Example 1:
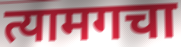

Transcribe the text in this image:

त्यामगचा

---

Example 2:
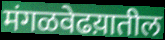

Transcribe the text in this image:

मंगळवेढय़ातील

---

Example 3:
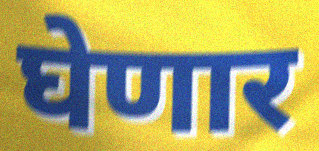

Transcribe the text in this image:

घेणार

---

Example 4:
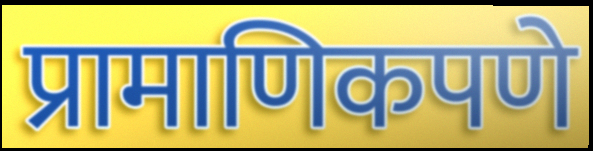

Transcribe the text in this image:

प्रामाणिकपणे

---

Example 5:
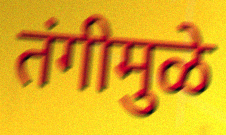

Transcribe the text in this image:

तंगीमुळे